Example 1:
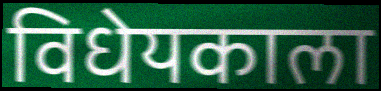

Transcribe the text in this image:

विधेयकाला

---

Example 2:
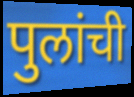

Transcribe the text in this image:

पुलांची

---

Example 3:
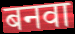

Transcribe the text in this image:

बनवा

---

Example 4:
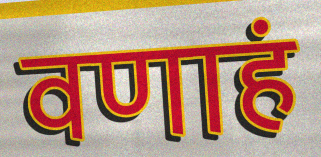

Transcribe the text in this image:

वणाहं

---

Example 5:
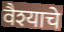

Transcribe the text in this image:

वैश्याचे